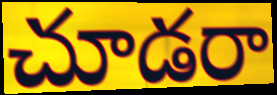
చూడరా